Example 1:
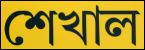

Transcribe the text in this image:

শেখাল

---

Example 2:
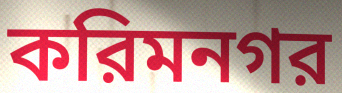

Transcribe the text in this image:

করিমনগর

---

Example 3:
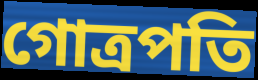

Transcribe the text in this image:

গোত্রপতি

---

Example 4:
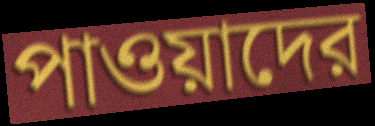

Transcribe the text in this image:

পাওয়াদের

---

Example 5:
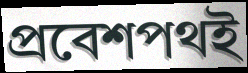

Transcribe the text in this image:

প্রবেশপথই